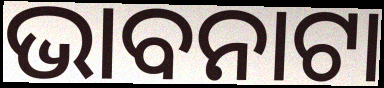
ଭାବନାଟା